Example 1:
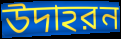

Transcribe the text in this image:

উদাহরন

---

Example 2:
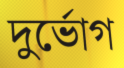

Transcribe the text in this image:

দুর্ভোগ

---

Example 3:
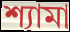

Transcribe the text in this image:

শ্যামা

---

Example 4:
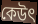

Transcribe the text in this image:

কেউৎ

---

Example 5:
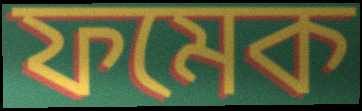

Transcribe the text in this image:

ফমেক